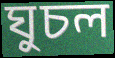
ঘুচল